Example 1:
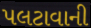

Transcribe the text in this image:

પલટાવાની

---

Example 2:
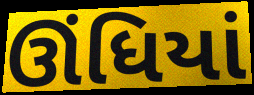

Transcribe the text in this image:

ઊંધિયાં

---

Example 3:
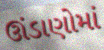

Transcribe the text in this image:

ઊંડાણોમાં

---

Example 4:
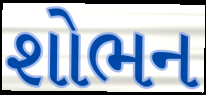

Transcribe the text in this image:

શોભન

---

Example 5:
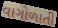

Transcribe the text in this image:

વાગોળાતી